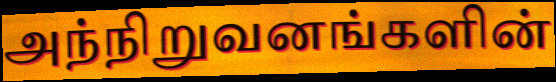
அந்நிறுவனங்களின்